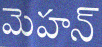
మెహన్